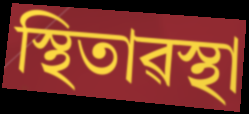
স্থিতাৱস্থা